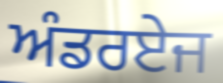
ਅੰਡਰਏਜ